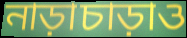
নাড়াচাড়াও